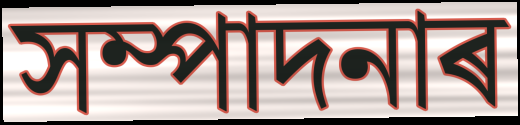
সম্পাদনাৰ